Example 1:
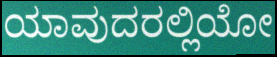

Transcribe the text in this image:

ಯಾವುದರಲ್ಲಿಯೋ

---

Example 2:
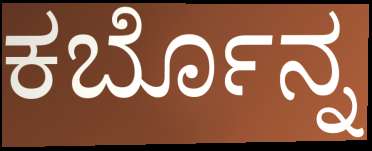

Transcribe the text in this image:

ಕರ್ಬೊನ್ನ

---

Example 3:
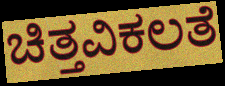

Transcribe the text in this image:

ಚಿತ್ತವಿಕಲತೆ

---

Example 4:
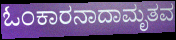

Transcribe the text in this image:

ಓಂಕಾರನಾದಾಮೃತವ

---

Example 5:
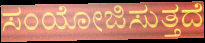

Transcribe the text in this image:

ಸಂಯೋಜಿಸುತ್ತದೆ